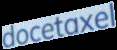
docetaxel